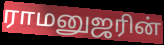
ராமனுஜரின்